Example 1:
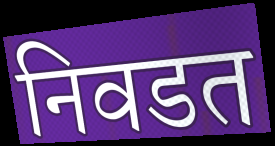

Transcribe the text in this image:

निवडत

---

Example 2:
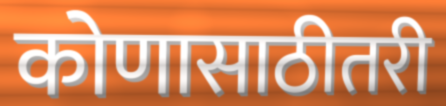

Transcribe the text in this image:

कोणासाठीतरी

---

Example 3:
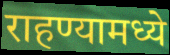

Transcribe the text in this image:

राहण्यामध्ये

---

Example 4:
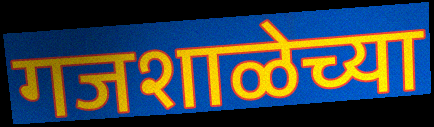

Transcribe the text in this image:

गजशाळेच्या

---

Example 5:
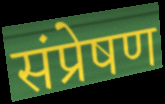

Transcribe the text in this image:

संप्रेषण